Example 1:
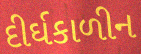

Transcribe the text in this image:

દીર્ઘકાળીન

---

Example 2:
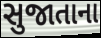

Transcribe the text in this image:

સુજાતાના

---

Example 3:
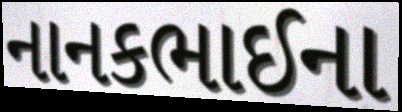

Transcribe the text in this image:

નાનકભાઈના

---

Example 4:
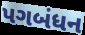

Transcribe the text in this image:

પગબંધન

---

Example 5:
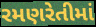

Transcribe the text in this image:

રમણરેતીમાં